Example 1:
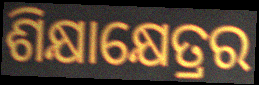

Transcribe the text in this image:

ଶିକ୍ଷାକ୍ଷେତ୍ରର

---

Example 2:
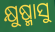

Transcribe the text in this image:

କ୍ଷୁଷ୍ମାସୁ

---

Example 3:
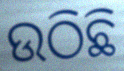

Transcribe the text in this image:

ଉଠିଛି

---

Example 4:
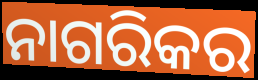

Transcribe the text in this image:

ନାଗରିକର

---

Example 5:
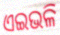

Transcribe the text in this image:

ଏଇଭଳି